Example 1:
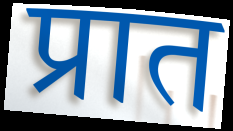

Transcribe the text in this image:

प्रात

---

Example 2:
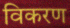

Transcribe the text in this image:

विकरण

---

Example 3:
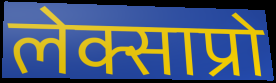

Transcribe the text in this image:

लेक्साप्रो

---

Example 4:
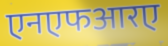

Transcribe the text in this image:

एनएफआरए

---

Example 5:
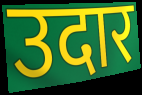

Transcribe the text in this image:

उदार